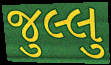
જુલ્લુ